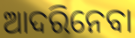
ଆଦରିନେବା